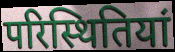
परिस्थितियां